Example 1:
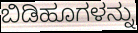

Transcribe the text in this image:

ಬಿಡಿಹೂಗಳನ್ನು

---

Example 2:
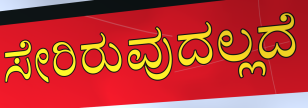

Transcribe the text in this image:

ಸೇರಿರುವುದಲ್ಲದೆ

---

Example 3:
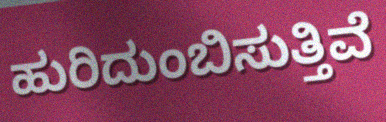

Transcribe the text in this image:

ಹುರಿದುಂಬಿಸುತ್ತಿವೆ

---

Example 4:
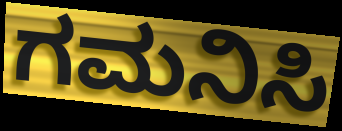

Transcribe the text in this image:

ಗಮನಿಸಿ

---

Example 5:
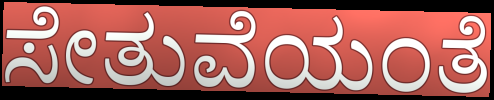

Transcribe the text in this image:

ಸೇತುವೆಯಂತೆ